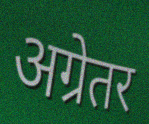
अग्रेतर